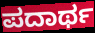
ಪದಾರ್ಥ